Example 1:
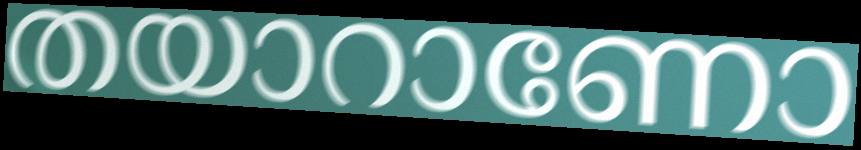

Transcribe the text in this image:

തയാറാണോ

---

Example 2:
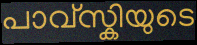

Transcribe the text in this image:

പാവ്സ്കിയുടെ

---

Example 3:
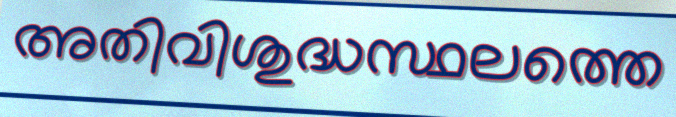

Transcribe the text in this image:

അതിവിശുദ്ധസ്ഥലത്തെ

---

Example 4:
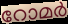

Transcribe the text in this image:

റോമർ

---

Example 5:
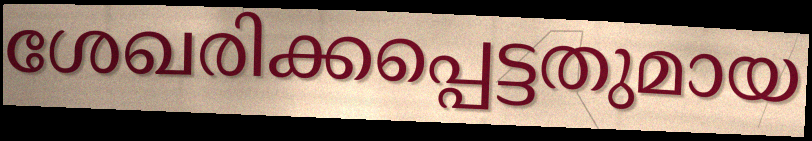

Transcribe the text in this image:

ശേഖരിക്കപ്പെട്ടതുമായ